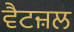
ਵੈਟਜ਼ਲ